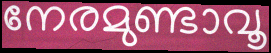
നേരമുണ്ടാവൂ